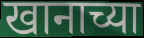
खानाच्या